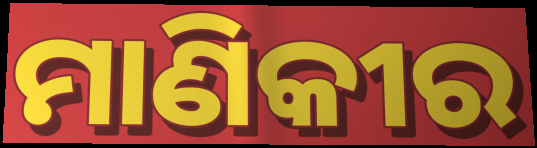
ମାଣିକୀର